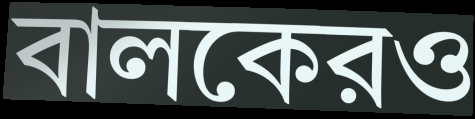
বালকেরও